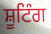
ਸ਼ੂਟਿੰਗ